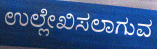
ಉಲ್ಲೇಖಿಸಲಾಗುವ